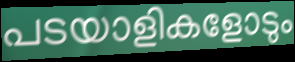
പടയാളികളോടും